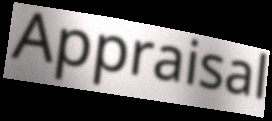
Appraisal